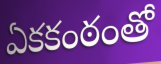
ఏకకంఠంతో